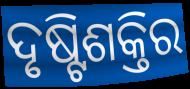
ଦୃଷ୍ଟିଶକ୍ତିର